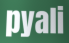
pyali